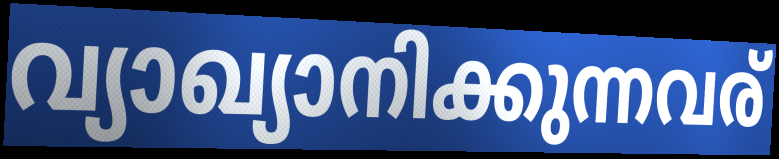
വ്യാഖ്യാനിക്കുന്നവര്